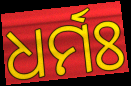
ଧର୍ମଃ